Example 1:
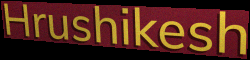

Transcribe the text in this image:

Hrushikesh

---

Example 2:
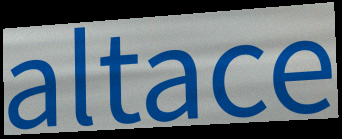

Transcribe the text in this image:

altace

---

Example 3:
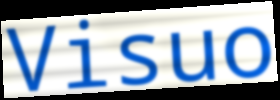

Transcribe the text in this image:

Visuo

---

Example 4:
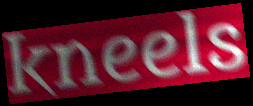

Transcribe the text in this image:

kneels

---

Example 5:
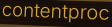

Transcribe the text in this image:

contentproc